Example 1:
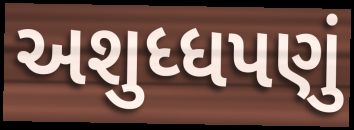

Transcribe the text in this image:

અશુધ્ધપણું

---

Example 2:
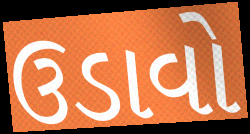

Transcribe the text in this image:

ઉડાવો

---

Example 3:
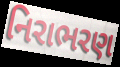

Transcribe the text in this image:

નિરાભરણ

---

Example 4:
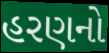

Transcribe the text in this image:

હરણનો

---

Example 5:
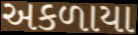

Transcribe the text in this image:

અકળાયા